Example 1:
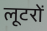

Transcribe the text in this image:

लूटरों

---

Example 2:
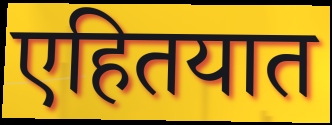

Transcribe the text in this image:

एहितयात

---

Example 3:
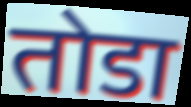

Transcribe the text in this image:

तोडा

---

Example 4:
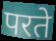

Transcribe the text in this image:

परते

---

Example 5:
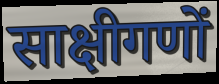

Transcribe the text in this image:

साक्षीगणों